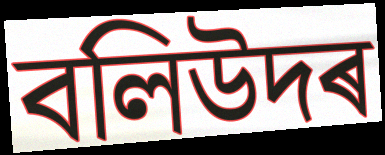
বলিউদৰ